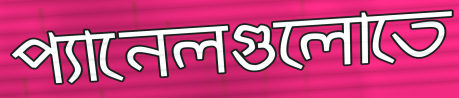
প্যানেলগুলোতে